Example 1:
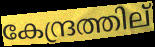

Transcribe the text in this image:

കേന്ദ്രത്തില്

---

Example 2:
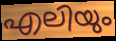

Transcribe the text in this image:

എലിയും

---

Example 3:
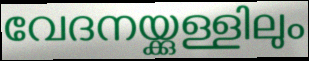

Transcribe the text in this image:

വേദനയ്ക്കുള്ളിലും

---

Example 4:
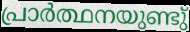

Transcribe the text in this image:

പ്രാർത്ഥനയുണ്ടു്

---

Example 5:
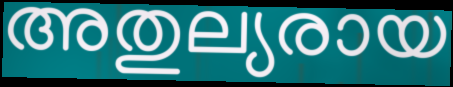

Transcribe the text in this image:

അതുല്യരായ